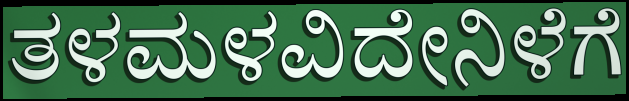
ತಳಮಳವಿದೇನಿಳೆಗೆ